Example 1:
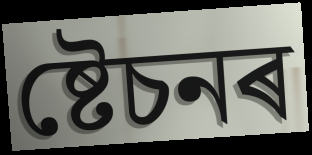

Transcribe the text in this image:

ষ্টেচনৰ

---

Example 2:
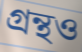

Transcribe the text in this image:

গ্ৰন্থও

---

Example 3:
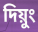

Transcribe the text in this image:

দিয়ুং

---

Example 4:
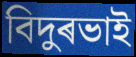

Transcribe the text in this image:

বিদুৰভাই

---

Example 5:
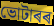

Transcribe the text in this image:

ভোটাৰৰ